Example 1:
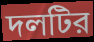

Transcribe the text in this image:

দলটির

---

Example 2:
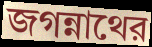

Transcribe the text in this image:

জগন্নাথের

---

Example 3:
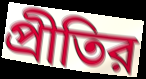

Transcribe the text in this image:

প্রীতির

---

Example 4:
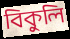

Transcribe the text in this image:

বিকুলি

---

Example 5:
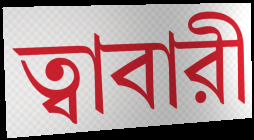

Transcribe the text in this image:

ত্বাবারী